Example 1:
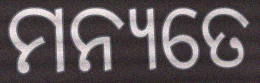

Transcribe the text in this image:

ମନ୍ୟତେ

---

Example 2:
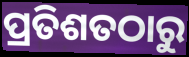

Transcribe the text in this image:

ପ୍ରତିଶତଠାରୁ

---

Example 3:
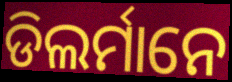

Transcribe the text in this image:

ଡିଲର୍ମାନେ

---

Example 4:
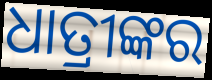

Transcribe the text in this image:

ଧାତ୍ରୀଙ୍କର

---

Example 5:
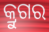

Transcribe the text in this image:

କ୍ରୁଗର